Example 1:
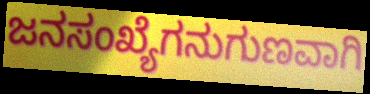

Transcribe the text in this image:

ಜನಸಂಖ್ಯೆಗನುಗುಣವಾಗಿ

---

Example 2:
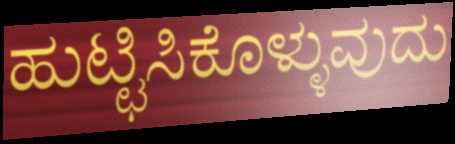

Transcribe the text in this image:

ಹುಟ್ಟಿಸಿಕೊಳ್ಳುವುದು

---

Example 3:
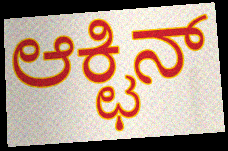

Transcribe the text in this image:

ಆಕ್ಟಿನ್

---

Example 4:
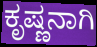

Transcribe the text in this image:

ಕೃಷ್ಣನಾಗಿ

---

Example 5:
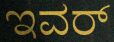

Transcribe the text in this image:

ಇವರ್